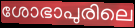
ശോഭാപുരിലെ